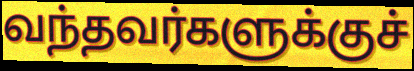
வந்தவர்களுக்குச்